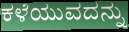
ಕಳೆಯುವದನ್ನು